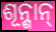
ଶୂନ୍ଶାନ୍